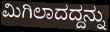
ಮಿಗಿಲಾದದ್ದನ್ನು